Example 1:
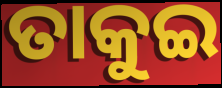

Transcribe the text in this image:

ତାକୁଇ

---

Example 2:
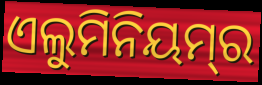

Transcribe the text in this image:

ଏଲୁମିନିୟମ୍‌ର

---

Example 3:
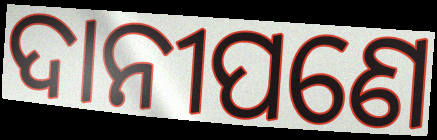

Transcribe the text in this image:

ଦାନୀପଣେ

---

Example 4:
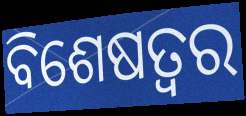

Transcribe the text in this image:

ବିଶେଷତ୍ବର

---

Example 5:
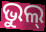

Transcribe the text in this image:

ଭୁଲ୍